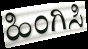
ಹಿಂಗಿಸಿ